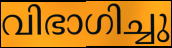
വിഭാഗിച്ചു